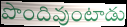
పొందివుంటాడు